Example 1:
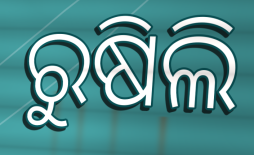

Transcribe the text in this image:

ରୁଷିଲି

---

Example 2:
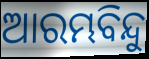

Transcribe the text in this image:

ଆରମ୍ଭବିନ୍ଦୁ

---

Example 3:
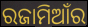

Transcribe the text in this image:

ରଜାମିଆଁର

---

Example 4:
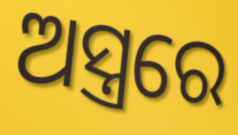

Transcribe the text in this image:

ଅସ୍ତ୍ରରେ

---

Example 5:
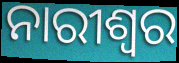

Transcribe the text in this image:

ନାରୀଶ୍ବର